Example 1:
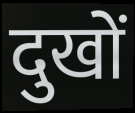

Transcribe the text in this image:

दुखों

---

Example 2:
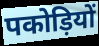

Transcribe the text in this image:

पकोड़ियों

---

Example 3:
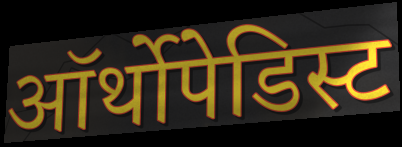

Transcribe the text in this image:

ऑर्थोपेडिस्ट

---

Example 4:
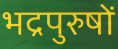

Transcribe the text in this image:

भद्रपुरुषों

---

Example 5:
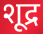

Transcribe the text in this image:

शूद्र